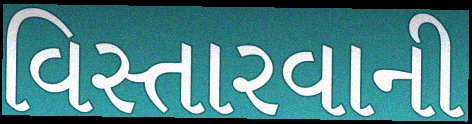
વિસ્તારવાની